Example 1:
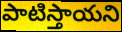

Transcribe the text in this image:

పాటిస్తాయని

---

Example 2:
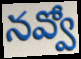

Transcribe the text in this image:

నవ్వో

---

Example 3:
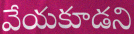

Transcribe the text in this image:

వేయకూడని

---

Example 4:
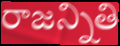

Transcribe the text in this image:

రాజన్నితి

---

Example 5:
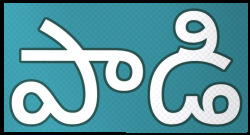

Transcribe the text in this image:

పాడి